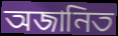
অজানিত